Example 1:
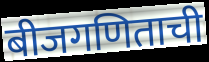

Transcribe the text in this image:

बीजगणिताची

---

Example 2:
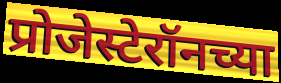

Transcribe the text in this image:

प्रोजेस्टेरॉनच्या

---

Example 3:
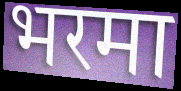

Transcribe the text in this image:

भरमा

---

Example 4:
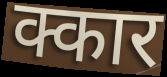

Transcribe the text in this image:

क्कार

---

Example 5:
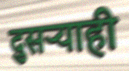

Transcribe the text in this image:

दुसर्‍याही